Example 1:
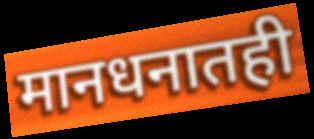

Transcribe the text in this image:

मानधनातही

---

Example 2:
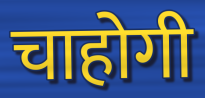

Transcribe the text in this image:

चाहोगी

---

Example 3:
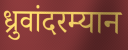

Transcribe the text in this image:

ध्रुवांदरम्यान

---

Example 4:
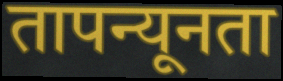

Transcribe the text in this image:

तापन्यूनता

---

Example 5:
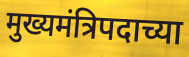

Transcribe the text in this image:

मुख्यमंत्रिपदाच्या